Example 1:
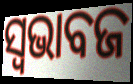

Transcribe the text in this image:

ସ୍ୱଭାବଜ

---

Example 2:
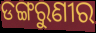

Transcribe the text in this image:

ଡଙ୍ଗରୁଣୀର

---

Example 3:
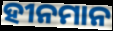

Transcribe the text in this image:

ହୀନମାନ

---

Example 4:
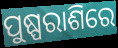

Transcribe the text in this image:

ପୁଷ୍ପରାଶିରେ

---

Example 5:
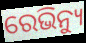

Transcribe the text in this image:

ରେଭିନ୍ୟୁ